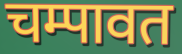
चम्पावत